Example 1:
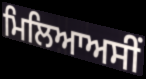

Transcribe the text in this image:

ਮਿਲਿਆਅਸੀਂ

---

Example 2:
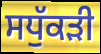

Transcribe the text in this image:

ਸਧੁੱਕੜੀ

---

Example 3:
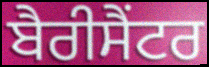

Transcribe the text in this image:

ਬੈਰੀਸੈਂਟਰ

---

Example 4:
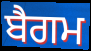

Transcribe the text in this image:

ਬੈਗਮ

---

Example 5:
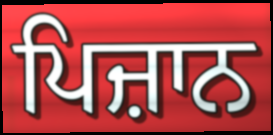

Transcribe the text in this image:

ਪਿਜ਼ਾਨ